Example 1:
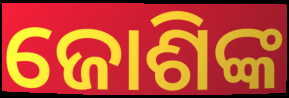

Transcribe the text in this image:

ଜୋଶିଙ୍କ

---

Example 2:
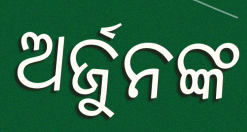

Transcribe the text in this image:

ଅର୍ଜୁନଙ୍କ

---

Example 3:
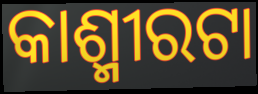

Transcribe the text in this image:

କାଶ୍ମୀରଟା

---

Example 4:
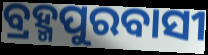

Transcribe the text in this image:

ବ୍ରହ୍ମପୁରବାସୀ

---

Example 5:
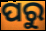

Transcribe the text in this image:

ପରୁ